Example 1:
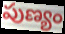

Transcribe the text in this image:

పుణ్యం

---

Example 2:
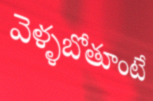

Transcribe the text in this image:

వెళ్ళబోతూంటే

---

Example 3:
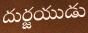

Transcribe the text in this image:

దుర్జయుడు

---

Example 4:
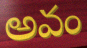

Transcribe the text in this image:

అవం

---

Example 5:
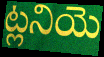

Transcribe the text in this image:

ట్లనియె